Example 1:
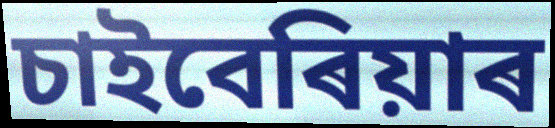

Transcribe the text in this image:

চাইবেৰিয়াৰ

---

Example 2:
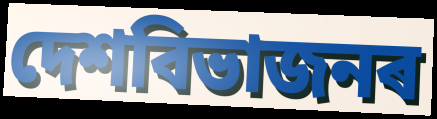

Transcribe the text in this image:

দেশবিভাজনৰ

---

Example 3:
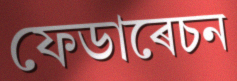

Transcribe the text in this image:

ফেডাৰেচন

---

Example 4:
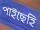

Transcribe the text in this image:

পাইছেহি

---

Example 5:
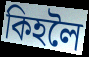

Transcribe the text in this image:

কিহলৈ